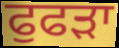
ਫੁਫੜਾ